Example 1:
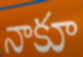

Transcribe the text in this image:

నాకూ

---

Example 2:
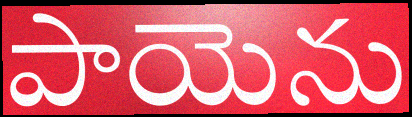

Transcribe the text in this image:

పాయెను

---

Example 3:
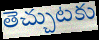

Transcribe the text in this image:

తెచ్చుటకు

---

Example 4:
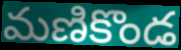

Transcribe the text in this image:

మణికొండ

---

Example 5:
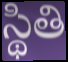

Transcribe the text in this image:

స్థితి